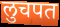
लुचपत